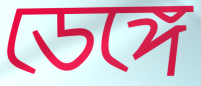
ডেঙ্গে